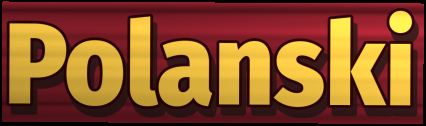
Polanski